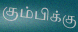
கும்பிக்கு